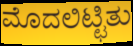
ಮೊದಲಿಟ್ಟಿತು